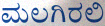
ಮಲಗಿರಲಿ